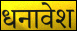
धनावेश